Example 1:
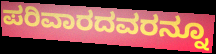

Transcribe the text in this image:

ಪರಿವಾರದವರನ್ನೂ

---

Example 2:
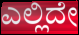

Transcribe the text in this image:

ಎಲ್ಲಿದೇ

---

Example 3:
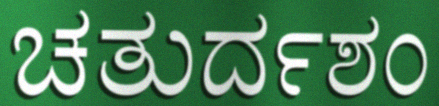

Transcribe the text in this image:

ಚತುರ್ದಶಂ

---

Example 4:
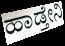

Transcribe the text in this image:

ಹಾಡ್ತೇನಿ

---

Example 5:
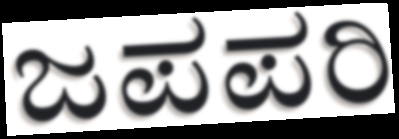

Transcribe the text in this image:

ಜಪಪರಿ